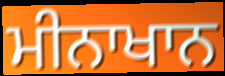
ਮੀਨਾਖਾਨ